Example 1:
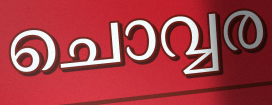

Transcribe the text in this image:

ചൊവ്വര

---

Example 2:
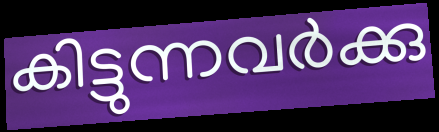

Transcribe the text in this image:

കിട്ടുന്നവർക്കു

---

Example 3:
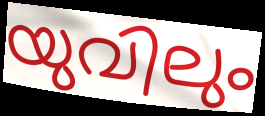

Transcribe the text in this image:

യുവിലും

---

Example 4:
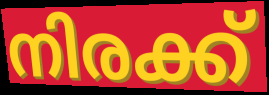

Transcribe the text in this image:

നിരക്ക്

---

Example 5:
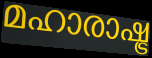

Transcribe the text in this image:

മഹാരാഷ്ട്ര